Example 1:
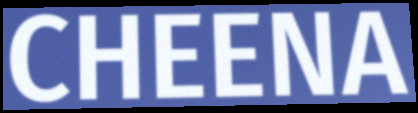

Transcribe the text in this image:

CHEENA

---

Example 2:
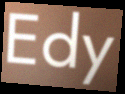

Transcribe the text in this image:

Edy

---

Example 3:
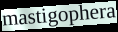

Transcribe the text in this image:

mastigophera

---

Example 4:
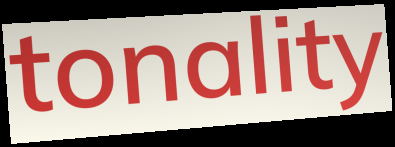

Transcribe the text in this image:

tonality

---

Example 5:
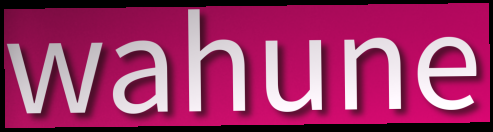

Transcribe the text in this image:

wahune